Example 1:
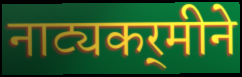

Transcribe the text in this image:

नाट्यकर्मीने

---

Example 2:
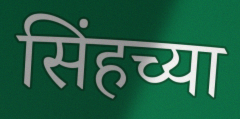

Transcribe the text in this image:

सिंहच्या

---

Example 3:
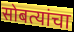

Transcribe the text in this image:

सोबत्यांचा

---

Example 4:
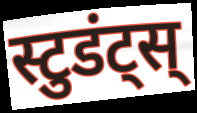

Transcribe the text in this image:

स्टुडंट्स्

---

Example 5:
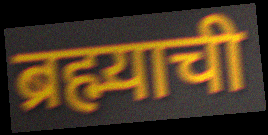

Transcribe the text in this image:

ब्रह्म्याची